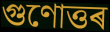
গুণোত্তৰ